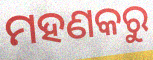
ମହଣକରୁ